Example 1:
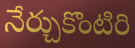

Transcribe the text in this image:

నేర్చుకొంటిరి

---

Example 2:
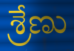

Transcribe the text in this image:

శ్రేణు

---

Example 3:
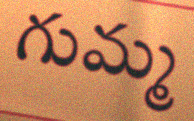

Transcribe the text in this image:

గుమ్మ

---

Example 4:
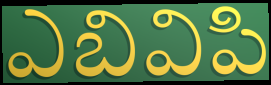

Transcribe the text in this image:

ఎబివిపి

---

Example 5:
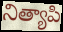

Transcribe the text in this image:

నిత్యాపి